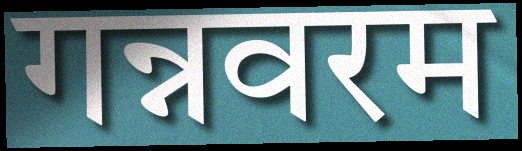
गन्नवरम